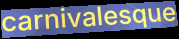
carnivalesque